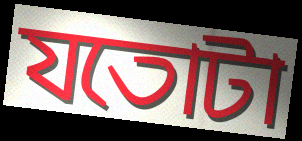
যতোটা